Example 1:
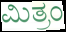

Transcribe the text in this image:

ಮಿತ್ರಂ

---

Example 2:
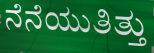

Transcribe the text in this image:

ನೆನೆಯುತಿತ್ತು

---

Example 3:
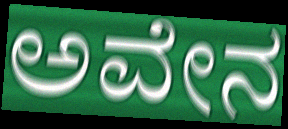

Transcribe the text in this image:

ಅವೇನ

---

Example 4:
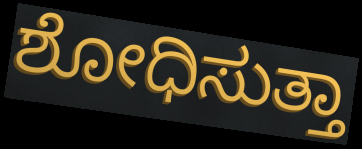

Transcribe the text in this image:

ಶೋಧಿಸುತ್ತಾ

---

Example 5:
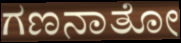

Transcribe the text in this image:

ಗಣನಾತೋ